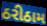
ઠરીઠામ